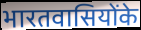
भारतवासियोंके